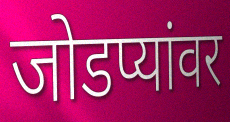
जोडप्यांवर